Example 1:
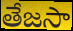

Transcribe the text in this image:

తేజసా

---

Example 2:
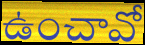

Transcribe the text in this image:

ఉంచావో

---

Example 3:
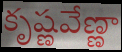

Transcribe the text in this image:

కృష్ణవేణ్ణా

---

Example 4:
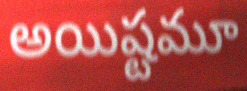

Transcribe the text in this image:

అయిష్టమూ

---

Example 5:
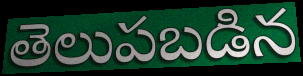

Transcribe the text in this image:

తెలుపబడిన